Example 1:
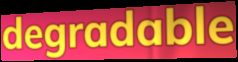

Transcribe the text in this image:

degradable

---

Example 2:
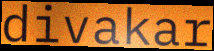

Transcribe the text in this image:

divakar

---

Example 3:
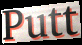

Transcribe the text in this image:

Putt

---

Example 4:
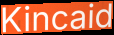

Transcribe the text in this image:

Kincaid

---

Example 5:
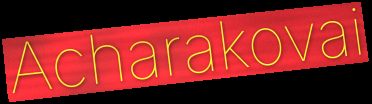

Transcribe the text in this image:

Acharakovai